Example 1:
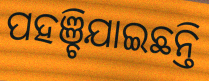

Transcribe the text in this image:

ପହଞ୍ଚିଯାଇଛନ୍ତି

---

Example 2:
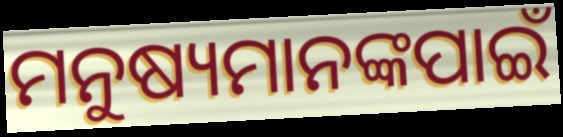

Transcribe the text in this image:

ମନୁଷ୍ୟମାନଙ୍କପାଇଁ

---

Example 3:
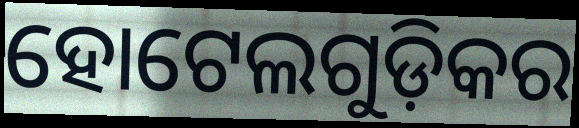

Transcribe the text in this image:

ହୋଟେଲଗୁଡ଼ିକର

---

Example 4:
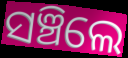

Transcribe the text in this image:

ସଞ୍ଚିଲେ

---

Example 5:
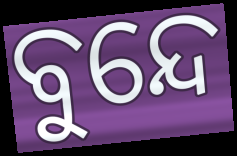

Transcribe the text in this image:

ବୁନ୍ଦେ